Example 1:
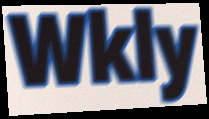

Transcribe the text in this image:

Wkly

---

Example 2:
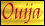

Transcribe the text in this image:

Ouija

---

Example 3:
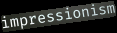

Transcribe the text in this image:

impressionism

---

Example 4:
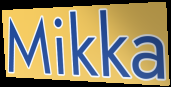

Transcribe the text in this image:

Mikka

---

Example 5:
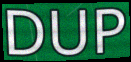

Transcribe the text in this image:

DUP